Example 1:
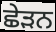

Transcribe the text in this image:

ਛੇੜਨ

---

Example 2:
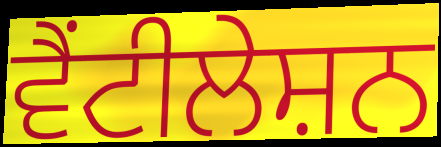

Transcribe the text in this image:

ਵੈਂਟੀਲੇਸ਼ਨ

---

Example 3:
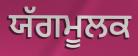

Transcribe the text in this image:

ਯੱਗਮੂਲਕ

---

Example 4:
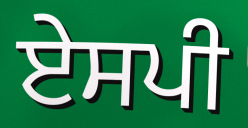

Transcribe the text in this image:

ਏਸਪੀ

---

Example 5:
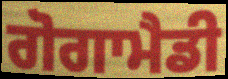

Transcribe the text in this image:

ਗੋਗਾਮੈਡੀ